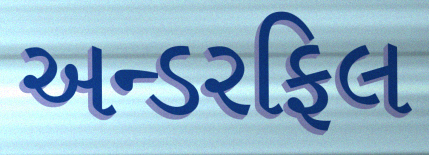
અન્ડરફિલ